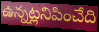
ఉన్నట్లనిపించేది